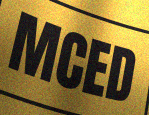
MCED